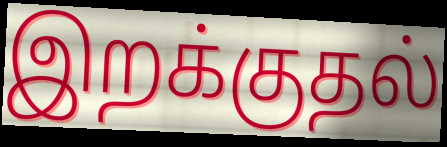
இறக்குதல்